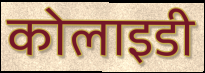
कोलाइडी